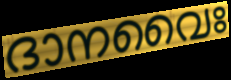
ദാനവൈഃ